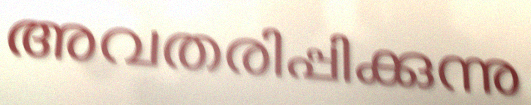
അവതരിപ്പിക്കുന്നു